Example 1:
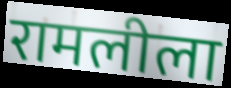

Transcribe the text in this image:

रामलीला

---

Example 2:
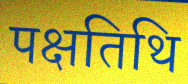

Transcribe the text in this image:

पक्षतिथि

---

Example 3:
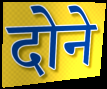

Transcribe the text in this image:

दोने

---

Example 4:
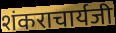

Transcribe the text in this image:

शंकराचार्यजी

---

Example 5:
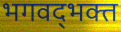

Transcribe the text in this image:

भगवद्भक्त